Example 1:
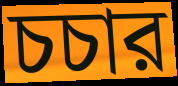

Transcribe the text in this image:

চচার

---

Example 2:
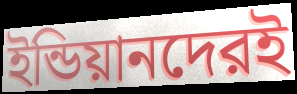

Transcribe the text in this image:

ইন্ডিয়ানদেরই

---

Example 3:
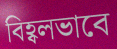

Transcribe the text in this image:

বিহ্বলভাবে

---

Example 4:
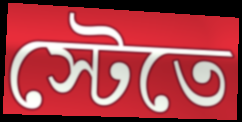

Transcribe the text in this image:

স্টেতে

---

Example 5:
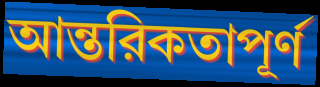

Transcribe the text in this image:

আন্তরিকতাপূর্ণ